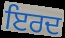
ਇਰਦ